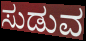
ಸುಡುವ